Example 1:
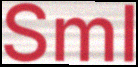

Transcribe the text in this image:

Sml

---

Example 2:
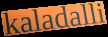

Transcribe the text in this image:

kaladalli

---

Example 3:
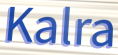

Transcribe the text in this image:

Kalra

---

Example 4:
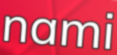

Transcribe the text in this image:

nami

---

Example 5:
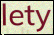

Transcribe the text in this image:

lety